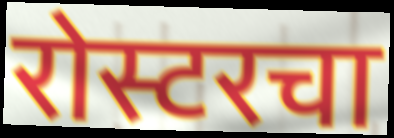
रोस्टरचा